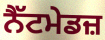
ਨੈੱਟਮੇਡਜ਼